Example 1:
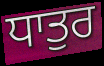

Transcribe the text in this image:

ਧਾਤੁਰ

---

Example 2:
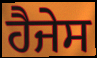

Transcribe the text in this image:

ਹੈਜੇਸ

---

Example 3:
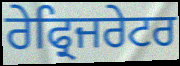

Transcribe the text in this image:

ਰੇਫ੍ਰਿਜਰੇਟਰ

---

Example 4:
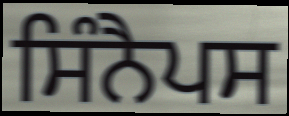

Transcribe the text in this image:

ਸਿੰਨੈਪਸ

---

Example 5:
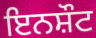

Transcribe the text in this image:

ਇਨਸ਼ੌਟ